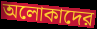
অলোকাদের